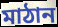
মাঠান